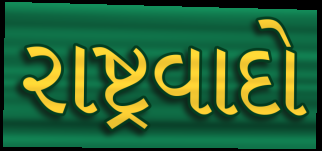
રાષ્ટ્રવાદો